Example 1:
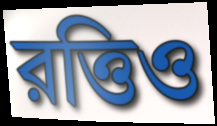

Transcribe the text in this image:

রত্তিও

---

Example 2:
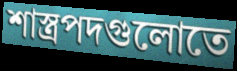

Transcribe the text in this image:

শাস্ত্রপদগুলোতে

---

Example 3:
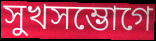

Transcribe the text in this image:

সুখসম্ভোগে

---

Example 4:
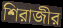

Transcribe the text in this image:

শিরাজীর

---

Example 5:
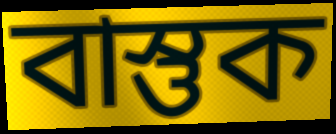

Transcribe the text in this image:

বাস্তুক